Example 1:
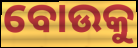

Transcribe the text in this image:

ବୋଉକୁ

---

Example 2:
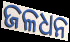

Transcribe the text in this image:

ଜଳଧନ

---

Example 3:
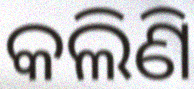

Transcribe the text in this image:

କଲିଣି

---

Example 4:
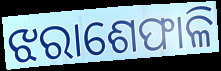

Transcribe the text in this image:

ଝରାଶେଫାଳି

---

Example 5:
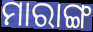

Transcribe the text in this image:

ମାରାଙ୍ଗ